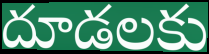
దూడలకు